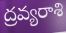
ద్రవ్యరాశి